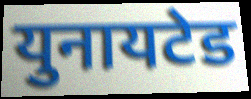
युनायटेड